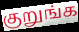
குறுங்க